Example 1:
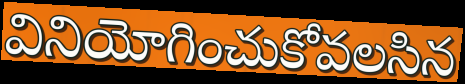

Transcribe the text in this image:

వినియోగించుకోవలసిన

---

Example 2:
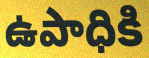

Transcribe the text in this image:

ఉపాధికి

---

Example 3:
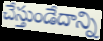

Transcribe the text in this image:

చేస్తుండేదాన్ని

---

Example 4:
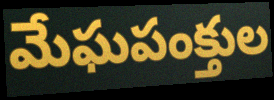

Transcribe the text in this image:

మేఘపంక్తుల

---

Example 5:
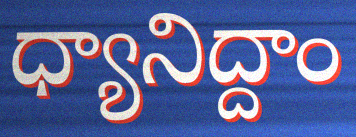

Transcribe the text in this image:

ధ్యానిద్దాం